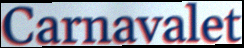
Carnavalet